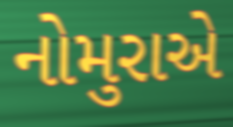
નોમુરાએ